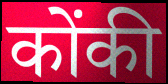
कोंकी